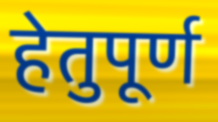
हेतुपूर्ण